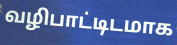
வழிபாட்டிடமாக